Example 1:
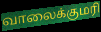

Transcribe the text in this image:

வாலைக்குமரி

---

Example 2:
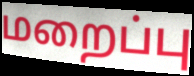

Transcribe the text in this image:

மறைப்பு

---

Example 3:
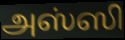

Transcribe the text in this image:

அஸ்ஸி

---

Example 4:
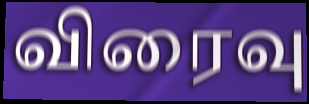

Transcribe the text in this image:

விரைவு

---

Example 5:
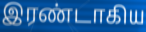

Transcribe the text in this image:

இரண்டாகிய